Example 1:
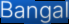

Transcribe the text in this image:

Bangal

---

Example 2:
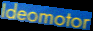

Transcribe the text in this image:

Ideomotor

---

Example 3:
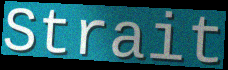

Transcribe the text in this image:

Strait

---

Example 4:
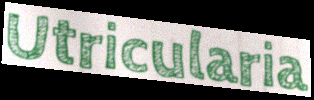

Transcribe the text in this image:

Utricularia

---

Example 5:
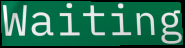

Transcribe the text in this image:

Waiting